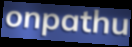
onpathu